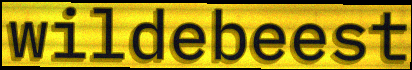
wildebeest